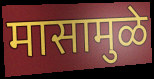
मासामुळे